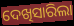
ଦେଖିସାରିଲା